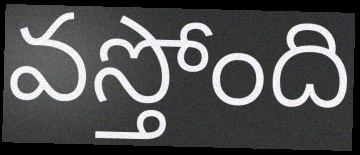
వస్తోంది